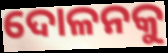
ଦୋଳନକୁ